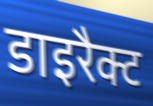
डाइरैक्ट